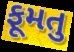
ફૂમતુ